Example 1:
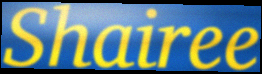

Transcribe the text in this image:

Shairee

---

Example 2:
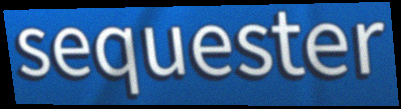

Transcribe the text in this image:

sequester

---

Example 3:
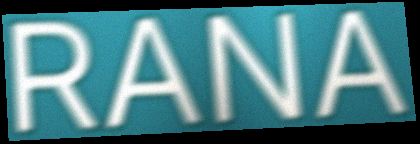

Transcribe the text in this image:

RANA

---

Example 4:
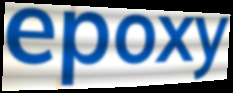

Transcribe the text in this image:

epoxy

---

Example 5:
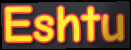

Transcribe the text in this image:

Eshtu